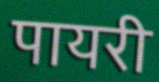
पायरी